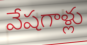
వేషగాళ్లు